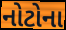
નોટોના